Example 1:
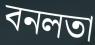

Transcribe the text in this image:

বনলতা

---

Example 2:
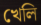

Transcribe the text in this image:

খেলি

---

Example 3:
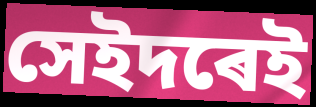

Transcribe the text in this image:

সেইদৰেই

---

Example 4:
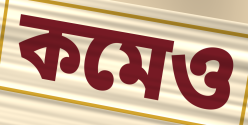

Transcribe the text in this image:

কমেও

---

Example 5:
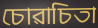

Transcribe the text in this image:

চোৱাচিতা